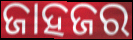
ଜାହଜର